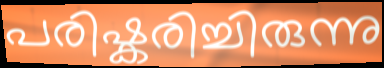
പരിഷ്കരിച്ചിരുന്നു